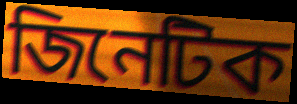
জিনেটিক